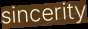
sincerity